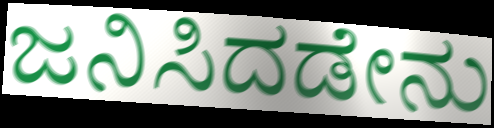
ಜನಿಸಿದಡೇನು